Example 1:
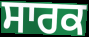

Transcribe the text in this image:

ਸਾਰਕ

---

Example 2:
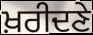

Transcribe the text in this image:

ਖ਼ਰੀਦਣੇ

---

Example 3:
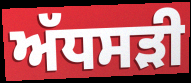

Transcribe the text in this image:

ਅੱਧਸੜੀ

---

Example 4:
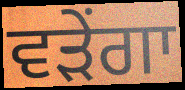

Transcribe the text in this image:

ਵੜੇਂਗਾ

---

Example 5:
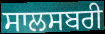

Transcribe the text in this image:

ਸਾਲਸਬਰੀ